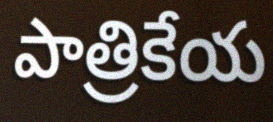
పాత్రికేయ